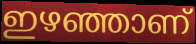
ഇഴഞ്ഞാണ്